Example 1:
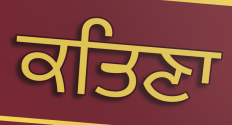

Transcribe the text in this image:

ਕਤਿਣਾ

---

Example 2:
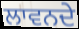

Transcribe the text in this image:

ਲਾਵਨਦੇ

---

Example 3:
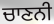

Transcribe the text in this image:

ਚਾਣਨੀ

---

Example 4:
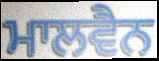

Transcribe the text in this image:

ਮਾਲਵੈਨ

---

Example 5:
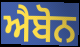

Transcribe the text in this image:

ਐਬੋਨ